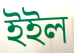
ইইল